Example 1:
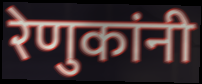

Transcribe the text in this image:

रेणुकांनी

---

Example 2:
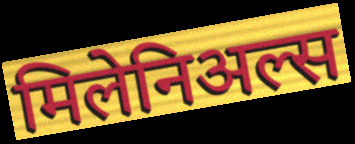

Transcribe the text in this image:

मिलेनिअल्स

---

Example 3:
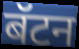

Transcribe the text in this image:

बॅटन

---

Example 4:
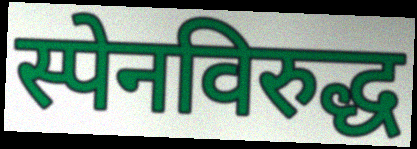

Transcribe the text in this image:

स्पेनविरुद्ध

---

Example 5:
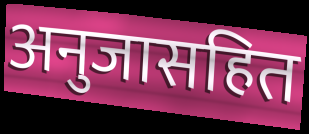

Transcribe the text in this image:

अनुजासहित